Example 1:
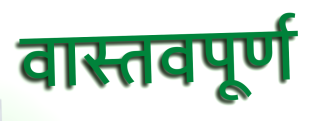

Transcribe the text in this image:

वास्तवपूर्ण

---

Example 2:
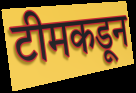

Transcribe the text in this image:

टीमकडून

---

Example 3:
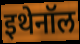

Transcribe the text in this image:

इथेनॉल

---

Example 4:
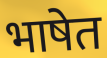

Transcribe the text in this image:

भाषेत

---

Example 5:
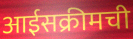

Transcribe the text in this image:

आईसक्रीमची